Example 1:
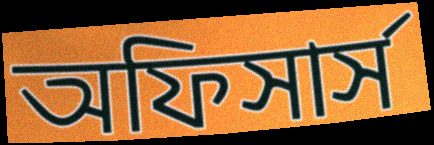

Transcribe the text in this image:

অফিসার্স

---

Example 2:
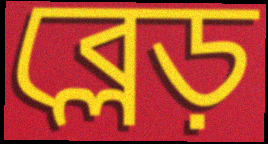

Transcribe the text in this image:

ব্লেড়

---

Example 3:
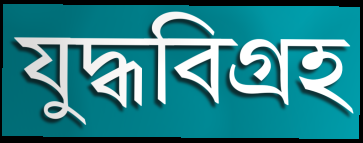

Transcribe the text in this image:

যুদ্ধবিগ্রহ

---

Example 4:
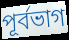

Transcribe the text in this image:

পূর্বভাগ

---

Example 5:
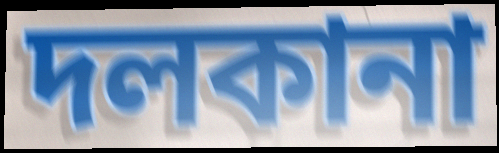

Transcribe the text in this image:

দলকানা